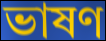
ভাষণ